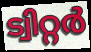
ട്വിറ്റർ